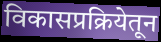
विकासप्रक्रियेतून